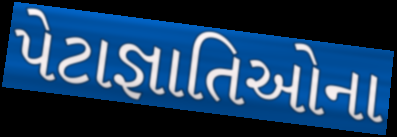
પેટાજ્ઞાતિઓના